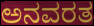
ಅನವರತ